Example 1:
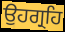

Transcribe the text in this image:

ਉਹਗ੍ਰਹਿ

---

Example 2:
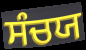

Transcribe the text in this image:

ਸੰਚਯ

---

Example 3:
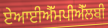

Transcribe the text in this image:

ਏਆਈਐੱਮਪੀਐੱਲਬੀ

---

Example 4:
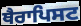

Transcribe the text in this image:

ਥੈਰਾਪਿਸਟ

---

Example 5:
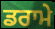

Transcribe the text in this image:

ਡਰਾਮੇ